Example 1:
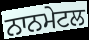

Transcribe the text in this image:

ਨਾਨਮੇਟਲ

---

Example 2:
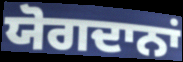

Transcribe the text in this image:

ਯੋਗਦਾਨਾਂ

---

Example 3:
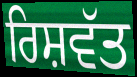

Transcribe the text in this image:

ਰਿਸ਼ਵੱਤ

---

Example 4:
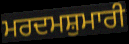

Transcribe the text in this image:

ਮਰਦਮਸ਼ੁਮਾਰੀ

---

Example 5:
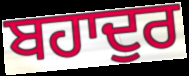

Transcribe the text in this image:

ਬਹਾਦੁਰ